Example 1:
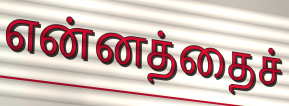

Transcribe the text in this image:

என்னத்தைச்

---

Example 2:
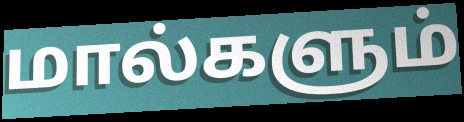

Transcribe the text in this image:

மால்களும்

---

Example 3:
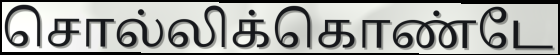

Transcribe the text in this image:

சொல்லிக்கொண்டே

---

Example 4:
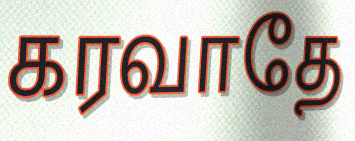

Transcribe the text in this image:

கரவாதே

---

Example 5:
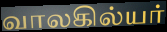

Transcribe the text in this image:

வாலகில்யர்